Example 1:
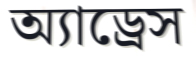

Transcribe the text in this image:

অ্যাড্রেস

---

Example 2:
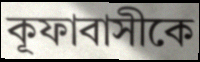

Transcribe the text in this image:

কূফাবাসীকে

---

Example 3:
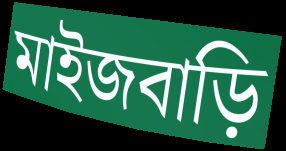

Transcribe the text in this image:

মাইজবাড়ি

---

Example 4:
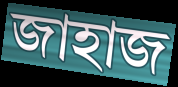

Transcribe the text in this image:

জাহাজ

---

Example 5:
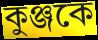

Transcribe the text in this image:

কুঞ্জকে